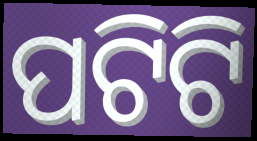
ପଟିଟି